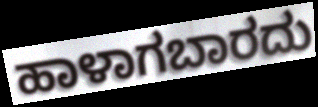
ಹಾಳಾಗಬಾರದು